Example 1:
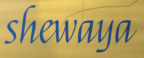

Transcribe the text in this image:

shewaya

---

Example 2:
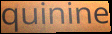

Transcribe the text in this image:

quinine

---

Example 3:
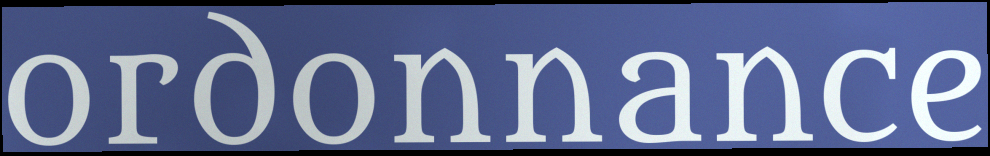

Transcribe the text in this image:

ordonnance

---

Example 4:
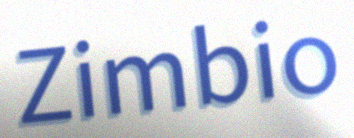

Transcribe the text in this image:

Zimbio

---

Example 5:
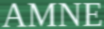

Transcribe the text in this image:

AMNE